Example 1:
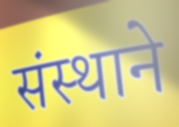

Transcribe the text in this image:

संस्थाने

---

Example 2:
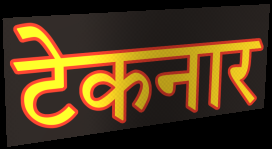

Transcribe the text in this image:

टेकनार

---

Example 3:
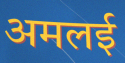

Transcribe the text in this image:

अमलई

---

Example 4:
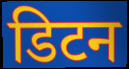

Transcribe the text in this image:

डिटन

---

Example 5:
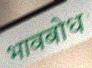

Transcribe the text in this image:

भावबोध